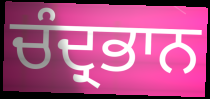
ਚੰਦ੍ਰਭਾਨ